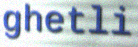
ghetli